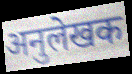
अनुलेखक